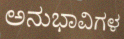
ಅನುಭಾವಿಗಳ